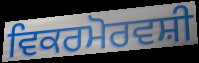
ਵਿਕਰਮੋਰਵਸ਼ੀ